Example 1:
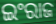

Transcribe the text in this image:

ଇଂରାଜ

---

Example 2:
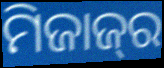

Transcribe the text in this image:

ମିଜାଜ୍‌ର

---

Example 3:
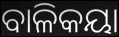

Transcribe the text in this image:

ବାଳିକୟା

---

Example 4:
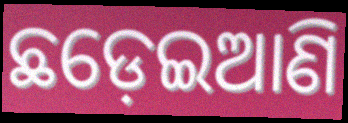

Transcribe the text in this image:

ଛଡ଼େଇଆଣି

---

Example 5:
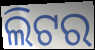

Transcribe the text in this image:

ଲିଟର